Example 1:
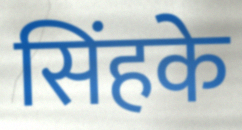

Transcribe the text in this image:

सिंहके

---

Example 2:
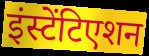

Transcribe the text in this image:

इंस्टेंटिएशन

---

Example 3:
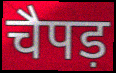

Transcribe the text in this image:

चैपड़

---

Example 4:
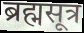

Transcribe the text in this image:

ब्रह्मसूत्र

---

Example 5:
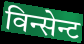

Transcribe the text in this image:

विन्सेन्ट